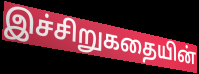
இச்சிறுகதையின்